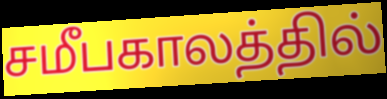
சமீபகாலத்தில்